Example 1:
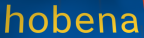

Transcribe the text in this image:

hobena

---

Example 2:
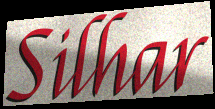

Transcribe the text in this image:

Silhar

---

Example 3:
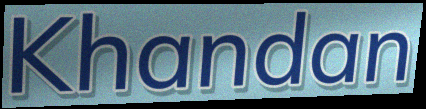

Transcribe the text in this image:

Khandan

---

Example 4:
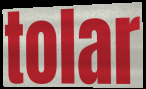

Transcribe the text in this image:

tolar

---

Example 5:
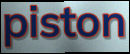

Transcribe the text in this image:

piston